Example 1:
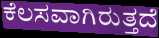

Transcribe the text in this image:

ಕೆಲಸವಾಗಿರುತ್ತದೆ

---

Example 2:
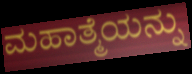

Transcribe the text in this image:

ಮಹಾತ್ಮೆಯನ್ನು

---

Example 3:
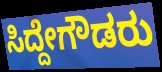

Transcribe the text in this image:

ಸಿದ್ದೇಗೌಡರು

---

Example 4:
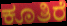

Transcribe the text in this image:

ಕೂತಿರೆ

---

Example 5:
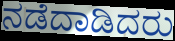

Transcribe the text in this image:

ನಡೆದಾಡಿದರು